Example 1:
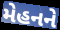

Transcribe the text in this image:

મેહનને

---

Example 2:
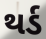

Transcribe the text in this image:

થર્ડ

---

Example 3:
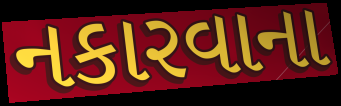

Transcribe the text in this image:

નકારવાના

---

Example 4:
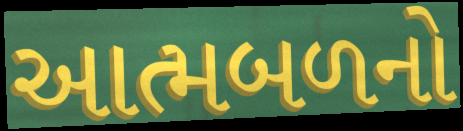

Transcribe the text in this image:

આત્મબળનો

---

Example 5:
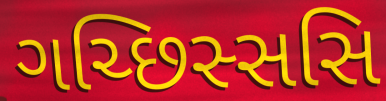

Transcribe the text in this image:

ગચ્છિસ્સસિ